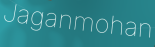
Jaganmohan